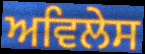
ਅਵਿਲੇਸ